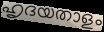
ഹൃദയതാളം